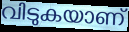
വിടുകയാണ്